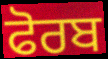
ਫੋਰਬ